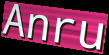
Anru